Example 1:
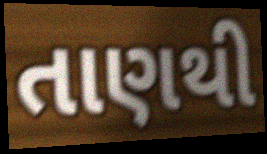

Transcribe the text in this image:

તાણથી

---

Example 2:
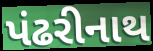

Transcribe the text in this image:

પંઢરીનાથ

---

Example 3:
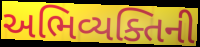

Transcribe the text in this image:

અભિવ્યક્તિની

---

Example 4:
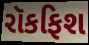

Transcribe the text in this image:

રૉકફિશ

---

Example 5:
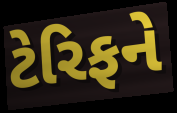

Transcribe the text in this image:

ટેરિફને